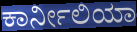
ಕಾರ್ನೀಲಿಯಾ